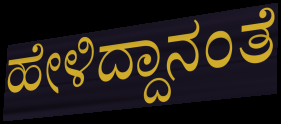
ಹೇಳಿದ್ದಾನಂತೆ